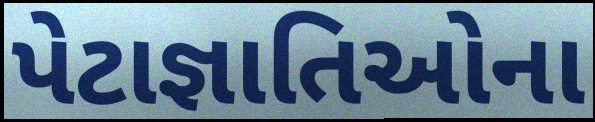
પેટાજ્ઞાતિઓના